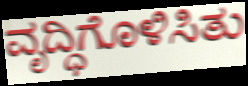
ವೃದ್ಧಿಗೊಳಿಸಿತು